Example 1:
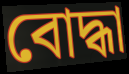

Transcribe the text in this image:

বোদ্ধা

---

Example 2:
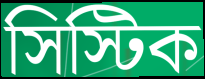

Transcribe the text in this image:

সিস্টিক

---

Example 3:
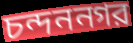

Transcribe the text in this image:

চন্দননগর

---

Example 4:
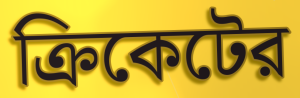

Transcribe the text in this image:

ক্রিকেটের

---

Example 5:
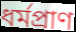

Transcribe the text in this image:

ধর্মপ্রাণ